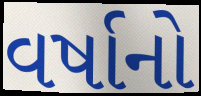
વર્ષાનો